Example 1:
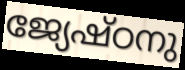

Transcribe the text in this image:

ജ്യേഷ്ഠനു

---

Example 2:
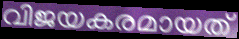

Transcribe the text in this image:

വിജയകരമായത്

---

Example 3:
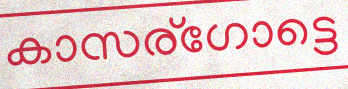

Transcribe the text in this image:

കാസര്ഗോട്ടെ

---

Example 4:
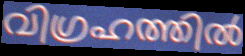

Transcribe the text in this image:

വിഗ്രഹത്തിൽ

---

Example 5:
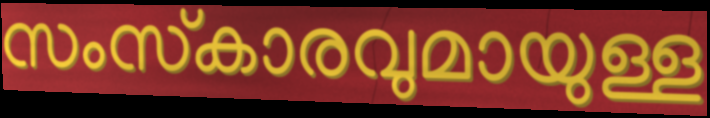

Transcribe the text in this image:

സംസ്‌കാരവുമായുള്ള